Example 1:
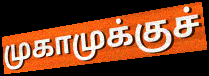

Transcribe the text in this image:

முகாமுக்குச்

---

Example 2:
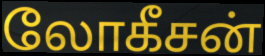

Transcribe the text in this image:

லோகீசன்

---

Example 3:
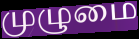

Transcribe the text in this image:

முழுமை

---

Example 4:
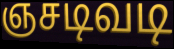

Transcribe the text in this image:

ஞசடிவடி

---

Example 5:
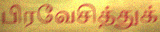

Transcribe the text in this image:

பிரவேசித்துக்